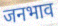
जनभाव